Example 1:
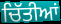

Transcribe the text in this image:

ਚਿੱਤੀਆਂ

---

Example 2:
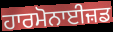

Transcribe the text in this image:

ਹਾਰਮੋਨਾਈਜ਼ਡ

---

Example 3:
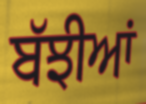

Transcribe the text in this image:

ਬੱਝੀਆਂ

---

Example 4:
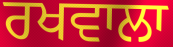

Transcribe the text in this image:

ਰਖਵਾਲਾ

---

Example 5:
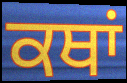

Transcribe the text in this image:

ਕਥਾਂ